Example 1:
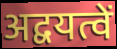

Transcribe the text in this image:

अद्वयत्वें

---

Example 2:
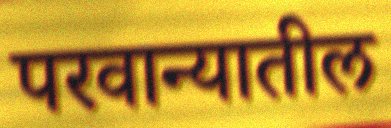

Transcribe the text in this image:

परवान्यातील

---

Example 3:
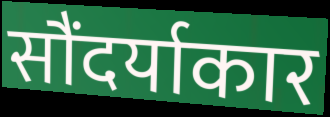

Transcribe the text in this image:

सौंदर्याकार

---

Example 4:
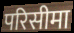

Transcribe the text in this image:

परिसीमा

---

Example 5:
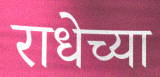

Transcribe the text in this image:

राधेच्या